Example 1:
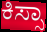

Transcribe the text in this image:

ಕಿಸ್ಸಾ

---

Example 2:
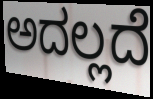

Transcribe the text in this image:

ಅದಲ್ಲದೆ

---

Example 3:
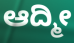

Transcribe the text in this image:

ಆದ್ಮೀ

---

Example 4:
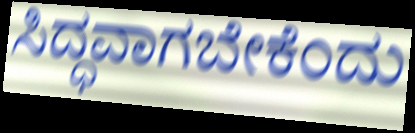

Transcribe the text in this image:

ಸಿದ್ಧವಾಗಬೇಕೆಂದು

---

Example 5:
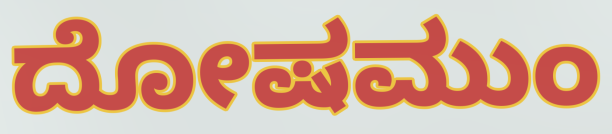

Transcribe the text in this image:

ದೋಷಮುಂ